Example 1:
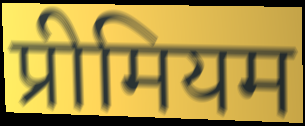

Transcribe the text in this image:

प्रीमियम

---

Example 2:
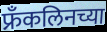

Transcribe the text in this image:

फ्रँकलिनच्या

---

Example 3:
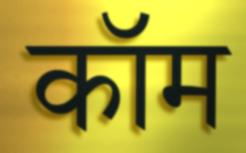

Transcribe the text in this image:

कॉम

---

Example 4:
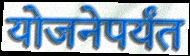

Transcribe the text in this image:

योजनेपर्यंत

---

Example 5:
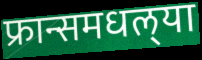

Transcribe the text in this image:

फ्रान्समधल्या